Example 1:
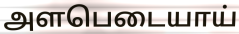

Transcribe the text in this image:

அளபெடையாய்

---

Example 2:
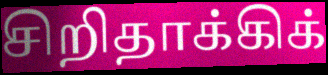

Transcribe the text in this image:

சிறிதாக்கிக்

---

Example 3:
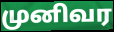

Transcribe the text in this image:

முனிவர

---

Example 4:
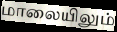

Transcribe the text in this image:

மாலையிலும்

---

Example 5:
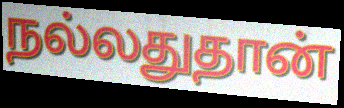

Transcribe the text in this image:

நல்லதுதான்